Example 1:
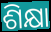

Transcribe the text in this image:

ଶିକ୍ଷା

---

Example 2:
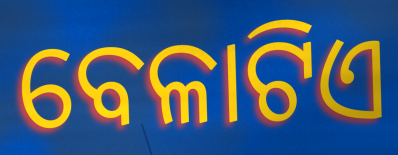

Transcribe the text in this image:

ବେଳାଟିଏ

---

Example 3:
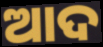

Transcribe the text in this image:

ଆଦ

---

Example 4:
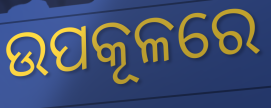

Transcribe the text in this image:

ଉପକୂଳରେ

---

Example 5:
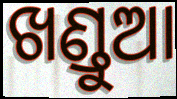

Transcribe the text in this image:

ଖଣ୍ଡୁଆ